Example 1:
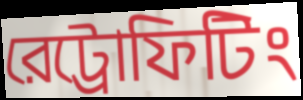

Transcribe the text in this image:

রেট্রোফিটিং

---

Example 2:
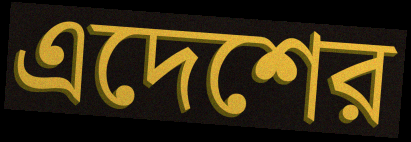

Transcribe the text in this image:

এদেশের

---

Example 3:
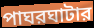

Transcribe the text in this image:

পাঘরঘাটার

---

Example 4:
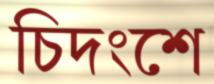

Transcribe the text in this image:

চিদংশে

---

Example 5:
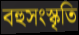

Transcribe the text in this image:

বহুসংস্কৃতি